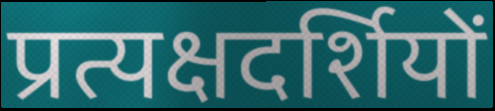
प्रत्यक्षदर्शियों